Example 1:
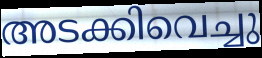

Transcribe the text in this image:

അടക്കിവെച്ചു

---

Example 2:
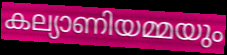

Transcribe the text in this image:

കല്യാണിയമ്മയും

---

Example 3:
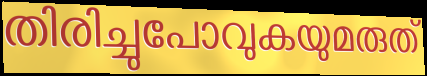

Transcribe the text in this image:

തിരിച്ചുപോവുകയുമരുത്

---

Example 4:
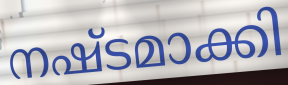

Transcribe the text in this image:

നഷ്ടമാക്കി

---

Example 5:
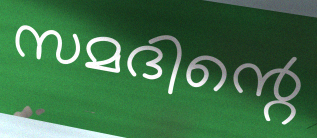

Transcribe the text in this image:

സമദിന്റെ